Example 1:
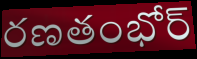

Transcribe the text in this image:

రణతంభోర్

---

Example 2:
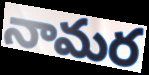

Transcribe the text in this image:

నామర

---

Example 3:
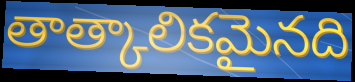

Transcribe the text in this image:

తాత్కాలికమైనది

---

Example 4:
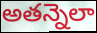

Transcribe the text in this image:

అతన్నెలా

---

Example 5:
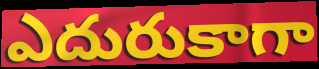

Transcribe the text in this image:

ఎదురుకాగా